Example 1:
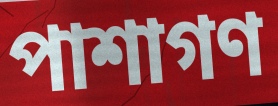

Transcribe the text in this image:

পাশাগণ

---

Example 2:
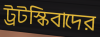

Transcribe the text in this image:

ট্রটস্কিবাদের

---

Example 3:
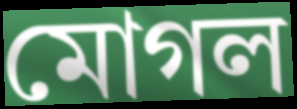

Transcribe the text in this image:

মোগল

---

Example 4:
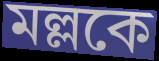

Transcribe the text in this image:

মল্লকে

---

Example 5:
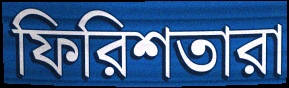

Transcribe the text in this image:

ফিরিশতারা